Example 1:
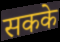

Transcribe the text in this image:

सकके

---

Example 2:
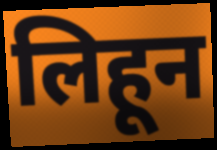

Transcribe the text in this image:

लिहून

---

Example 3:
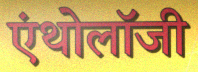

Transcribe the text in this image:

एंथोलॉजी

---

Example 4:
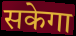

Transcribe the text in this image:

सकेगा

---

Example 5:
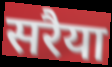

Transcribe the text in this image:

सरैया